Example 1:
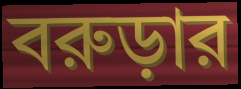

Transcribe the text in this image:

বরুড়ার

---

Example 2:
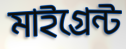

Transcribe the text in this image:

মাইগ্রেন্ট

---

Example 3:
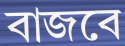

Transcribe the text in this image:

বাজবে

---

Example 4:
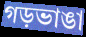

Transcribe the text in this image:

গড়ভাঙা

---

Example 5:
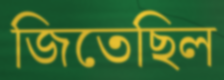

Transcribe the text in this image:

জিতেছিল